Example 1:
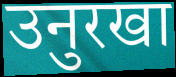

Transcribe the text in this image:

उनुरखा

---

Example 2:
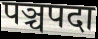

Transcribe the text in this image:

पञ्चपदा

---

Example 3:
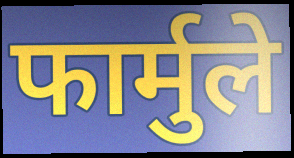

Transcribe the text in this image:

फार्मुले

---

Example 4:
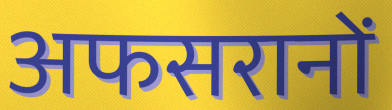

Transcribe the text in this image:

अफसरानों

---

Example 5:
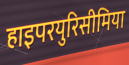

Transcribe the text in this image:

हाइपरयुरिसीमिया